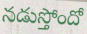
నడుస్తోందో